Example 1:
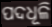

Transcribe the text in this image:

ପଦଧୂଳି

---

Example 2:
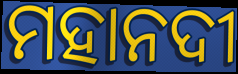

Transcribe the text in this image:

ମହାନଦୀ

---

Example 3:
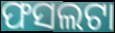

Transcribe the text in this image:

ଫସଲଟା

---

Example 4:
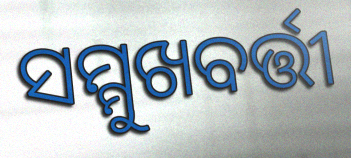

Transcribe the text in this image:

ସମ୍ମୁଖବର୍ତ୍ତୀ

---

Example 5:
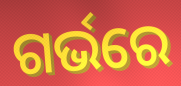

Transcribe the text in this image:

ଗର୍ଭରେ